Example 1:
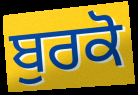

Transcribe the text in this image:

ਬੁਰਕੋ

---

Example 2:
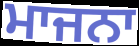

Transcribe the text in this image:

ਮਾਜਨਾ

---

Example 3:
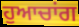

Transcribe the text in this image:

ਹੁਆਚਾਂਗ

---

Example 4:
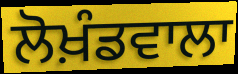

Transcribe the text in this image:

ਲੋਖ਼ੰਡਵਾਲਾ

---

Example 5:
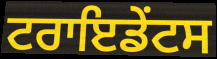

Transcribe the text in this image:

ਟਰਾਇਡੇਂਟਸ